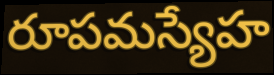
రూపమస్యేహ